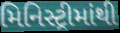
મિનિસ્ટ્રીમાંથી